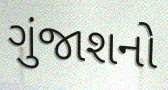
ગુંજાશનો